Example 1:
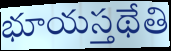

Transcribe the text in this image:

భూయస్తథేతి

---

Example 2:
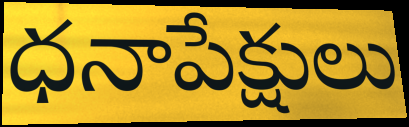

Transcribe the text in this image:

ధనాపేక్షులు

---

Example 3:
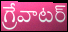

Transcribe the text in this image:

గ్రేవాటర్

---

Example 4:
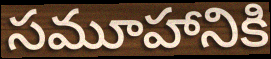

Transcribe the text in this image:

సమూహానికి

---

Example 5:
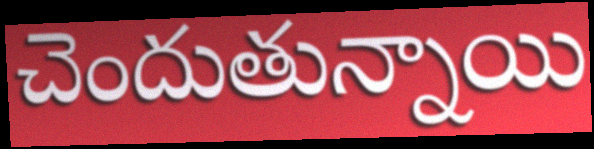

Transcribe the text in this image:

చెందుతున్నాయి